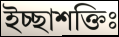
ইচ্ছাশক্তিঃ